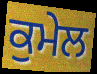
ਕੁਮੇਲ